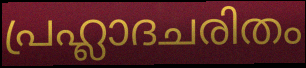
പ്രഹ്ലാദചരിതം